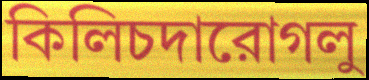
কিলিচদারোগলু